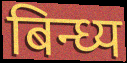
बिन्ध्य